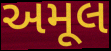
અમૂલ